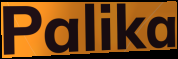
Palika